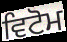
ਵਿਟੋਮ